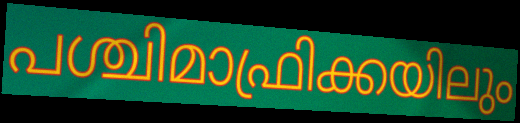
പശ്ചിമാഫ്രിക്കയിലും